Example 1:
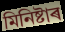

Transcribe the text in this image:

মিনিষ্টাৰ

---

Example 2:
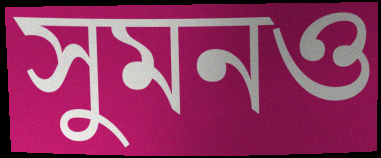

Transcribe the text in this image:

সুমনও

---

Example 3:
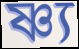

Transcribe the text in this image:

ষ্ণ্য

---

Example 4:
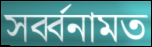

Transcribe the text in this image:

সৰ্ব্বনামত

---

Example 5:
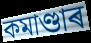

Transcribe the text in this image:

কমাণ্ডাৰ